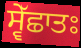
ਸ੍ਵੇੱਛਾਤਃ